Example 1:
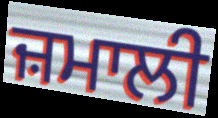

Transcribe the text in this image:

ਜ਼ਮਾਲੀ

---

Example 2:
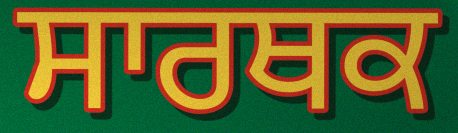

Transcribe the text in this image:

ਸਾਰਥਕ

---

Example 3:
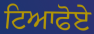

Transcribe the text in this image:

ਟਿਆਫੋਏ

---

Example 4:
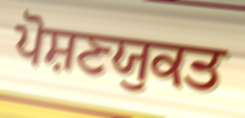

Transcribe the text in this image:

ਪੋਸ਼ਣਯੁਕਤ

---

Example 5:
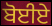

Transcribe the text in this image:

ਬੋਈਏ